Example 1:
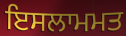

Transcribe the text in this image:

ਇਸਲਾਮਮਤ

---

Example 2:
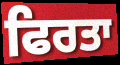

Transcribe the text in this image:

ਫਿਰਤਾ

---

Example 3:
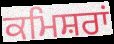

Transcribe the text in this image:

ਕਮਿਸ਼ਰਾਂ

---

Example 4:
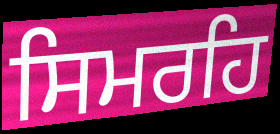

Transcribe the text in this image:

ਸਿਮਰਹਿ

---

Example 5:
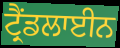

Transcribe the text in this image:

ਟ੍ਰੈਂਡਲਾਈਨ